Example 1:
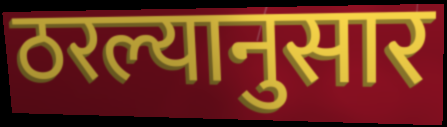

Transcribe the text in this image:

ठरल्यानुसार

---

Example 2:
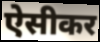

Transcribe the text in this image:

ऐसीकर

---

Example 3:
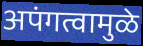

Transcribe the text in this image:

अपंगत्वामुळे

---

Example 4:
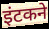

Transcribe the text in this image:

इंटकने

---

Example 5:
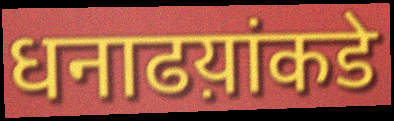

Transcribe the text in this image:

धनाढय़ांकडे